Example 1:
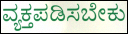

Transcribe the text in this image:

ವ್ಯಕ್ತಪಡಿಸಬೇಕು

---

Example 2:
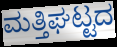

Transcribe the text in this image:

ಮತ್ತಿಘಟ್ಟದ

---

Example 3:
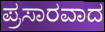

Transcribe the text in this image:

ಪ್ರಸಾರವಾದ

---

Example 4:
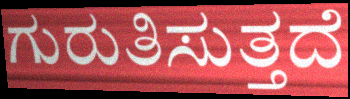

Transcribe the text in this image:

ಗುರುತಿಸುತ್ತದೆ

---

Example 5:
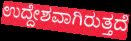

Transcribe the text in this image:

ಉದ್ದೇಶವಾಗಿರುತ್ತದೆ